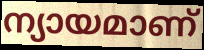
ന്യായമാണ്